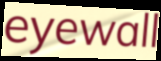
eyewall